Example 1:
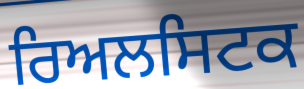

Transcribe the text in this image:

ਰਿਅਲਸਿਟਕ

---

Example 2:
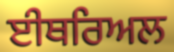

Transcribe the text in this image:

ਈਥਰਿਅਲ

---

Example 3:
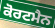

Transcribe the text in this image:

ਕੋਰਟਮੈਨ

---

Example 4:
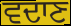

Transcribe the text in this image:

ਵਦਾਣ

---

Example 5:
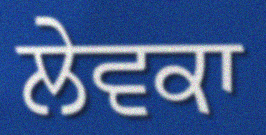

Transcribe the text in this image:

ਲੇਵਕਾ